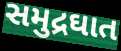
સમુદ્રઘાત